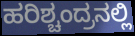
ಹರಿಶ್ಚಂದ್ರನಲ್ಲಿ